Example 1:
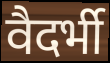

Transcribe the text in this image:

वैदर्भी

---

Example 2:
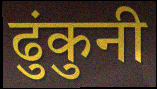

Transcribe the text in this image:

ढुंकुनी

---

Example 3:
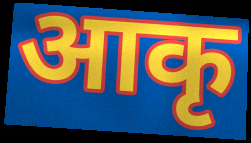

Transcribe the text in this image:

आकृ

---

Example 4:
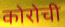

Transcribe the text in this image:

कोरोची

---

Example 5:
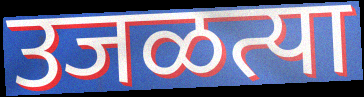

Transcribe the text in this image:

उजळत्या